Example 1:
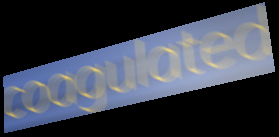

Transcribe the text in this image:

coagulated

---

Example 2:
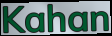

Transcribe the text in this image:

Kahan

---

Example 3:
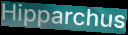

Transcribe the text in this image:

Hipparchus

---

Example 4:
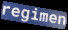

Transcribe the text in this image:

regimen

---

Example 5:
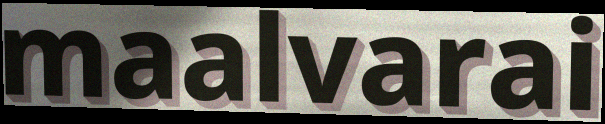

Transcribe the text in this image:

maalvarai